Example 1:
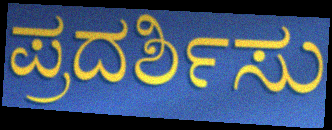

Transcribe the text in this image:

ಪ್ರದರ್ಶಿಸು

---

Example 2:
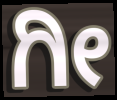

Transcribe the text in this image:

ಗೀ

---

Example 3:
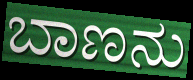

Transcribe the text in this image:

ಬಾಣನು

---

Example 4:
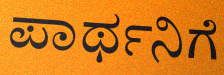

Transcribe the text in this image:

ಪಾರ್ಥನಿಗೆ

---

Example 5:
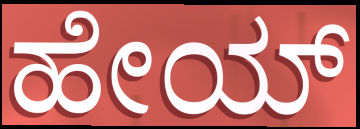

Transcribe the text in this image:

ಹೇಯ್